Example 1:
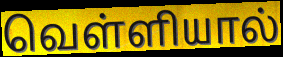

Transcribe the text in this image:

வெள்ளியால்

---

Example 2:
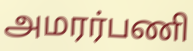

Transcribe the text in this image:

அமரர்பணி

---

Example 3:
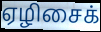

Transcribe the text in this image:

ஏழிசைக்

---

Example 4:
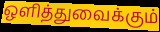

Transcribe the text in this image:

ஒளித்துவைக்கும்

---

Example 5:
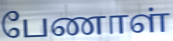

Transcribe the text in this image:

பேணாள்